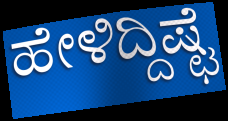
ಹೇಳಿದ್ದಿಷ್ಟೆ